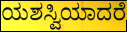
ಯಶಸ್ವಿಯಾದರೆ